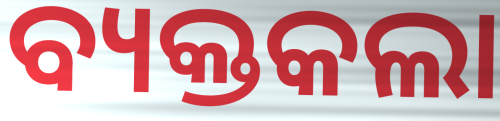
ବ୍ୟକ୍ତକଲା